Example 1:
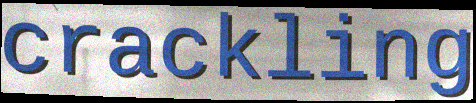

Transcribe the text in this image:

crackling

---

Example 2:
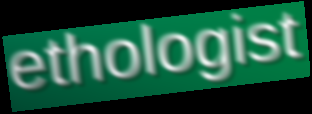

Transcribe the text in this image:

ethologist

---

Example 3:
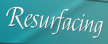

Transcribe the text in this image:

Resurfacing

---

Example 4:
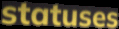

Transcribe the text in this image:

statuses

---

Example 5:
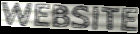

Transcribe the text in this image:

WEBSITE